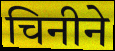
चिनीने